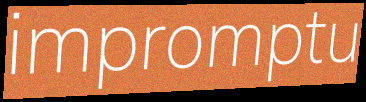
impromptu